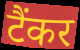
टैंकर